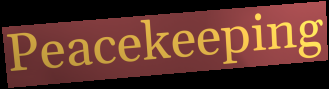
Peacekeeping